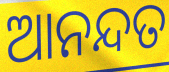
ଆନନ୍ଦତ